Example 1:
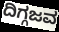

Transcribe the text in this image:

ದಿಗ್ಗಜವ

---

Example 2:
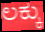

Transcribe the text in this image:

ಲಕ್ಕು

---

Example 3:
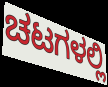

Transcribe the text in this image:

ಚಟಗಳಲ್ಲಿ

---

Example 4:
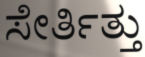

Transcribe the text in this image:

ಸೇರ್ತಿತ್ತು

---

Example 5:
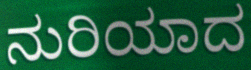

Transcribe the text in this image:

ನುರಿಯಾದ